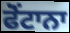
ਫੋਂਟਾਨਾ